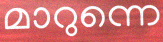
മാറുന്നെ